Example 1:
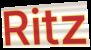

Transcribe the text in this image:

Ritz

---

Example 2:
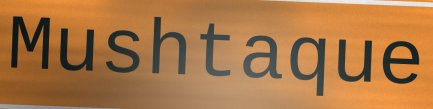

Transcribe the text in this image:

Mushtaque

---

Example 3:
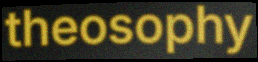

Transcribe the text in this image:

theosophy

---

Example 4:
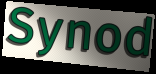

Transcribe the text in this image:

Synod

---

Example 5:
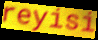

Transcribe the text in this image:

reyisi